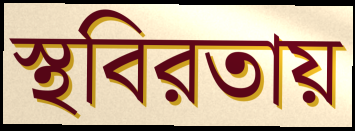
স্থবিরতায়